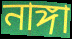
নাঙ্গা